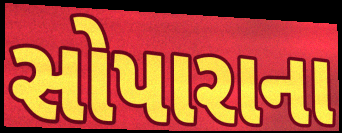
સોપારાના